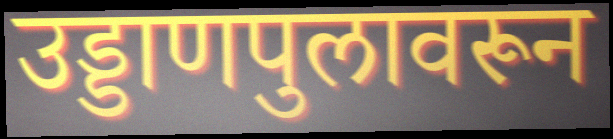
उड्डाणपुलावरून